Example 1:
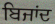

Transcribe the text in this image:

ਬਿਜਾਂਦ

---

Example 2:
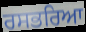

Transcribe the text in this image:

ਰਸਭਰਿਆ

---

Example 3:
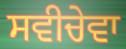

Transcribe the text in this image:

ਸਵੀਚੇਵਾ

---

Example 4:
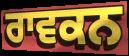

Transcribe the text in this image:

ਰਾਵਕਨ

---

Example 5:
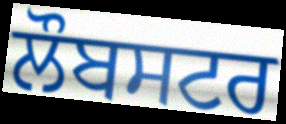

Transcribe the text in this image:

ਲੌਬਸਟਰ